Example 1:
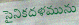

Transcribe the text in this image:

సైనికదళమును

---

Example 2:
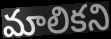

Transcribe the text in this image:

మాలికని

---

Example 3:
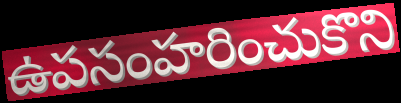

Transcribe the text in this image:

ఉపసంహరించుకొని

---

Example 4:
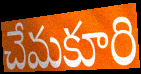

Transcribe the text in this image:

చేమకూరి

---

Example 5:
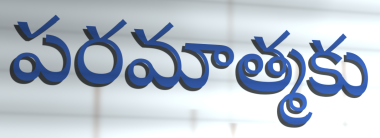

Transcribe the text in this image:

పరమాత్మకు